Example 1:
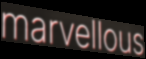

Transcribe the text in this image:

marvellous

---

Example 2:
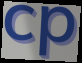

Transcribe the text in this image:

cp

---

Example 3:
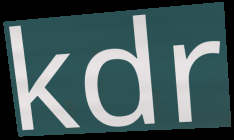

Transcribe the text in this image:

kdr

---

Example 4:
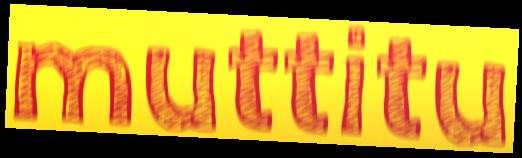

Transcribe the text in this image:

muttitu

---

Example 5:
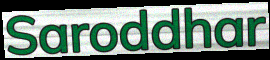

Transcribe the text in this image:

Saroddhar